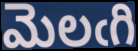
మెలఁగి